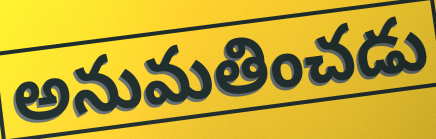
అనుమతించడు